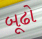
બૂઢો